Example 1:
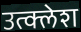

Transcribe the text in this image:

उत्क्लेश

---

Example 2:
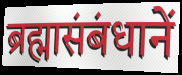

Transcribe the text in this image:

ब्रह्मासंबंधानें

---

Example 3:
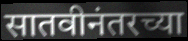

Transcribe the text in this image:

सातवीनंतरच्या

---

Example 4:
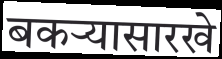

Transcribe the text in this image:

बकऱ्यासारखे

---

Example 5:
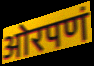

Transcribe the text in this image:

ओरपणं